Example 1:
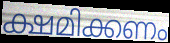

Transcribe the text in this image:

ക്ഷമിക്കണം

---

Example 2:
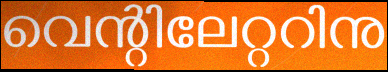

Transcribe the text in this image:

വെന്റിലേറ്ററിനു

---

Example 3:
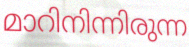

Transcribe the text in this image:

മാറിനിന്നിരുന്ന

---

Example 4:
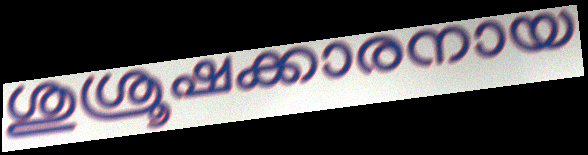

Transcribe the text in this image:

ശുശ്രൂഷക്കാരനായ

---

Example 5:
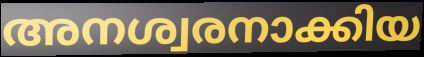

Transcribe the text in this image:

അനശ്വരനാക്കിയ